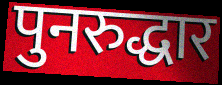
पुनरुद्धार